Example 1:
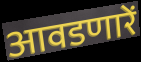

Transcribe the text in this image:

आवडणारें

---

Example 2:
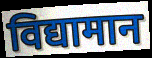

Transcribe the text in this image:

विद्यामान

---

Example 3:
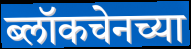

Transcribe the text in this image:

ब्लॉकचेनच्या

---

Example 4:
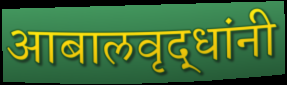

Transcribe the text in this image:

आबालवृद्धांनी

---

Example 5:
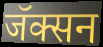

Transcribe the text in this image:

जॅक्सन